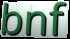
bnf